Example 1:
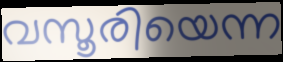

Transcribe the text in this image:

വസൂരിയെന്ന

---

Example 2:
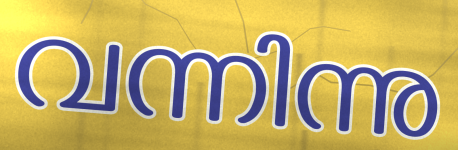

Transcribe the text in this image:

വന്നിന്നു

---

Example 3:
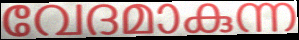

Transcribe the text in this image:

വേദമാകുന്ന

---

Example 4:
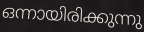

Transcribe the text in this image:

ഒന്നായിരിക്കുന്നു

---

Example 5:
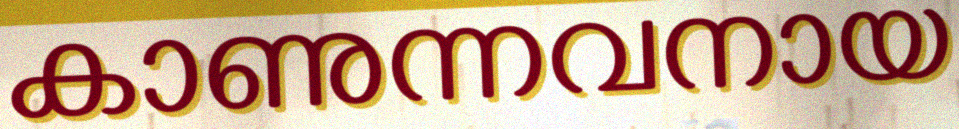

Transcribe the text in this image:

കാണുന്നവനായ